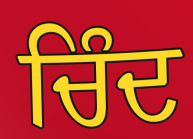
ਚਿੰਦ